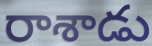
రాశాడు